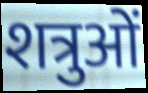
शत्रुओं